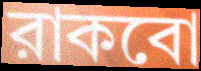
রাকবো